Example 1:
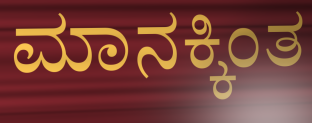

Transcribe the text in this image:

ಮಾನಕ್ಕಿಂತ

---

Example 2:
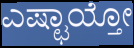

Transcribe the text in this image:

ಎಷ್ಟಾಯ್ತೋ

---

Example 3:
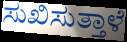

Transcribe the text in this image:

ಸುಖಿಸುತ್ತಾಳೆ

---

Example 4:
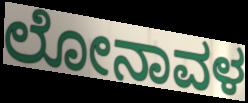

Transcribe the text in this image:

ಲೋನಾವಳ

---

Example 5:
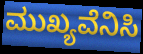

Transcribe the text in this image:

ಮುಖ್ಯವೆನಿಸಿ